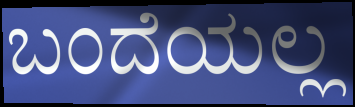
ಬಂದೆಯಲ್ಲ